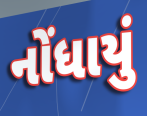
નોંધાયું